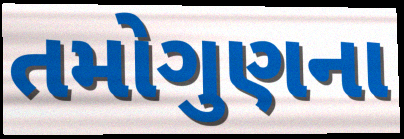
તમોગુણના